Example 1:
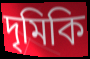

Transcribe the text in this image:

দৃমিকি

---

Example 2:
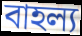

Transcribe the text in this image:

বাহল্য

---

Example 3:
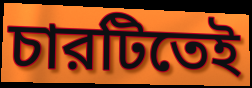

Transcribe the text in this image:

চারটিতেই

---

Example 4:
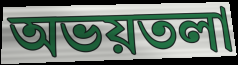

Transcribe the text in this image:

অভয়তলা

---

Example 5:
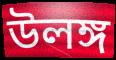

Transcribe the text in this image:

উলঙ্গ